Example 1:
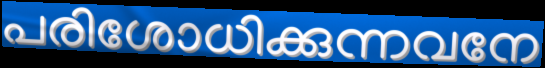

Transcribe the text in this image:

പരിശോധിക്കുന്നവനേ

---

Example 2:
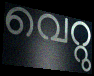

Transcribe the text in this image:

വെറ്റു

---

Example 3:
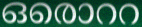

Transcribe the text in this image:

ഒരൊററ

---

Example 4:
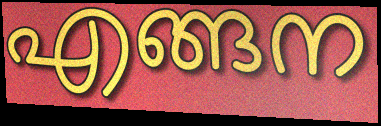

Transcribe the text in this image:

എങ്ങന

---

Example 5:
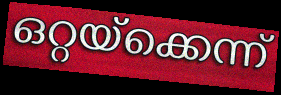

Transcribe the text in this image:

ഒറ്റയ്‌ക്കെന്ന്